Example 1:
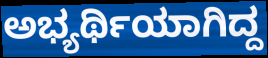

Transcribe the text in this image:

ಅಭ್ಯರ್ಥಿಯಾಗಿದ್ದ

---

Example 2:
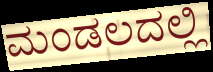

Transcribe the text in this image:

ಮಂಡಲದಲ್ಲಿ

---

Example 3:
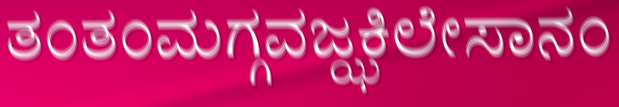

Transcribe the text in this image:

ತಂತಂಮಗ್ಗವಜ್ಝಕಿಲೇಸಾನಂ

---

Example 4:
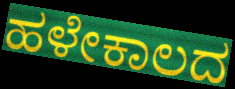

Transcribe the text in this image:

ಹಳೇಕಾಲದ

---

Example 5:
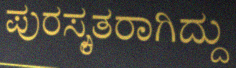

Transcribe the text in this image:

ಪುರಸ್ಕೃತರಾಗಿದ್ದು